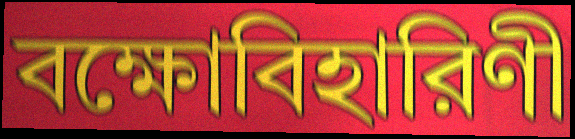
বক্ষোবিহারিণী